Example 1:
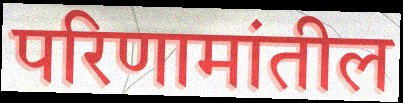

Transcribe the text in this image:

परिणामांतील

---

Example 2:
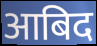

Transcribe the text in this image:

आबिद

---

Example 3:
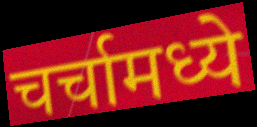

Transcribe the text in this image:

चर्चामध्ये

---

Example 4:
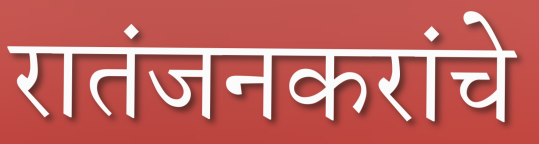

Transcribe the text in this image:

रातंजनकरांचे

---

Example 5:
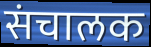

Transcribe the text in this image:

संचालक